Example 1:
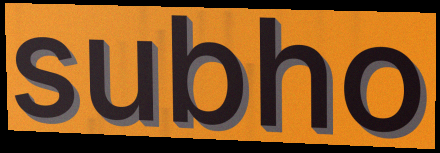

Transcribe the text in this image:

subho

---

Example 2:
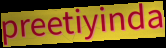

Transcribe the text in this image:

preetiyinda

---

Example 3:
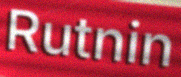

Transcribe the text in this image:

Rutnin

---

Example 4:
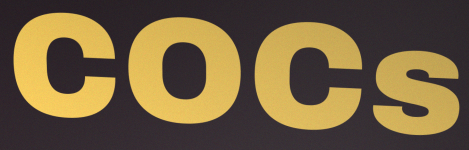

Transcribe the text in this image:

COCs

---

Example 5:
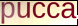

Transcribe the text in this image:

pucca